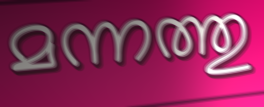
മന്നത്തു